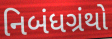
નિબંધગ્રંથો